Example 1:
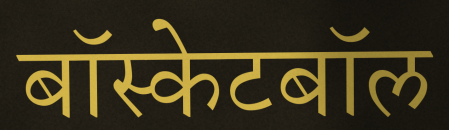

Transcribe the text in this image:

बॉस्केटबॉल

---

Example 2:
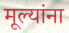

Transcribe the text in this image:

मूल्यांना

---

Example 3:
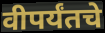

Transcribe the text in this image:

वीपर्यंतचे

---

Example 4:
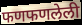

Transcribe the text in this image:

फणफणलेली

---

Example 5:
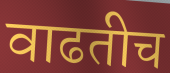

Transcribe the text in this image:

वाढतीच